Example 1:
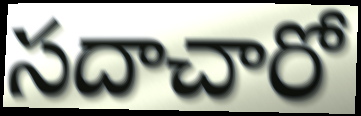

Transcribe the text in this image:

సదాచారో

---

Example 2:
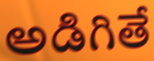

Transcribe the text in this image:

అడిగితే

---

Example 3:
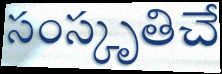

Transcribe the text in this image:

సంస్కృతిచే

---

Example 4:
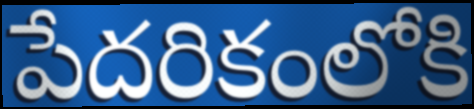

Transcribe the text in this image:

పేదరికంలోకి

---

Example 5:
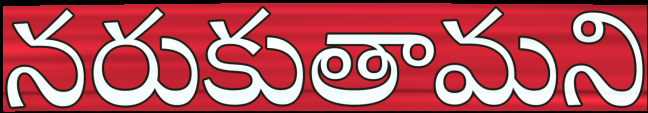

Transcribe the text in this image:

నరుకుతామని